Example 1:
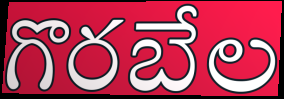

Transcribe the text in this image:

గొరబేల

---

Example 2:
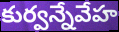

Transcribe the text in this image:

కుర్వన్నేవేహ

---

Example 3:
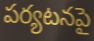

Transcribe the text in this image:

పర్యటనపై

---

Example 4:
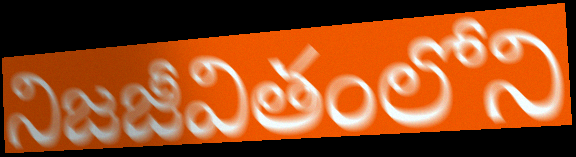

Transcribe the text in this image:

నిజజీవితంలోని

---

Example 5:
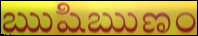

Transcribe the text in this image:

ఋషిఋణం